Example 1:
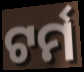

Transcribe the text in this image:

ଟର୍ମ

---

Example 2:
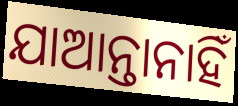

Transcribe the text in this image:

ଯାଆନ୍ତାନାହିଁ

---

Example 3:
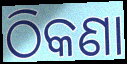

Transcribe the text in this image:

ଠିକଣା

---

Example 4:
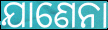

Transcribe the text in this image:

ଯାଣେନା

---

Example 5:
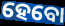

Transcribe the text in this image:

ହେବୋ